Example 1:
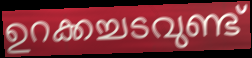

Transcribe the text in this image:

ഉറക്കച്ചടവുണ്ട്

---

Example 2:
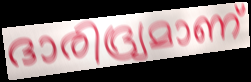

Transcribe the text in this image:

ദാരിദ്ര്യമാണ്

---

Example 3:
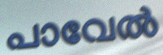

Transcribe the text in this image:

പാവേൽ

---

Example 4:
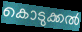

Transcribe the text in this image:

കൊടുക്കൽ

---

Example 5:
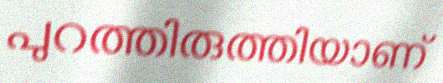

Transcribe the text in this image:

പുറത്തിരുത്തിയാണ്